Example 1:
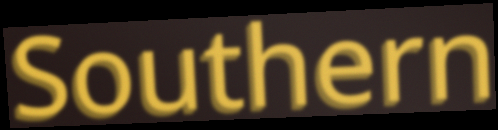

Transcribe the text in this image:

Southern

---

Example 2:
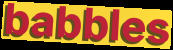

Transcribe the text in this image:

babbles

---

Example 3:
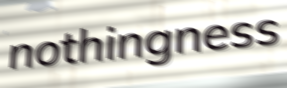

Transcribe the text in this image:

nothingness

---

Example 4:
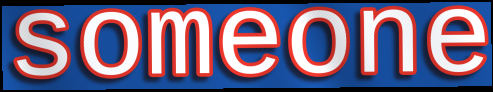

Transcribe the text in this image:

someone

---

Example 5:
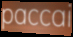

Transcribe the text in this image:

paccai